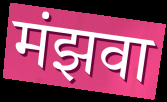
मंझवा